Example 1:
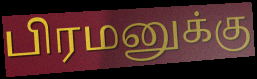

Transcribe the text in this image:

பிரமனுக்கு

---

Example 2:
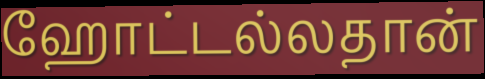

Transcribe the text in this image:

ஹோட்டல்லதான்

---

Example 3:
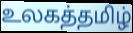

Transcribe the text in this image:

உலகத்தமிழ்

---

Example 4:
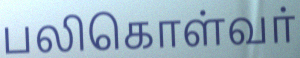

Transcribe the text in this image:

பலிகொள்வர்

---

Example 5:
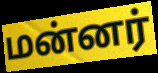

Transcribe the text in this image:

மன்னர்